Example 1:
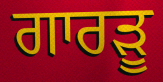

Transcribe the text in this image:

ਗਾਰੜੂ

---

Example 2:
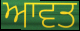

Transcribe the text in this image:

ਆਵਤ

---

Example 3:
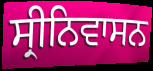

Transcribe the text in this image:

ਸ੍ਰੀਨਿਵਾਸਨ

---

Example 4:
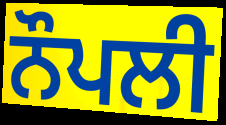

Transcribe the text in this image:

ਨੌਪਲੀ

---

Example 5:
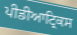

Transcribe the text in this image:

ਪੀਡੀਆਟ੍ਰਿਕਸ